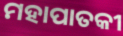
ମହାପାତକୀ